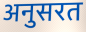
अनुसरत